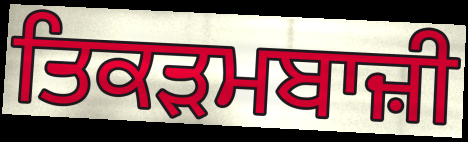
ਤਿਕੜਮਬਾਜ਼ੀ